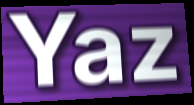
Yaz